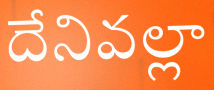
దేనివల్లా